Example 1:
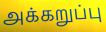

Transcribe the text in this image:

அக்கறுப்பு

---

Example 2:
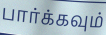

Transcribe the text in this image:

பார்க்கவும்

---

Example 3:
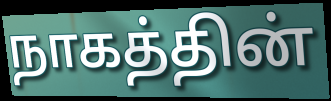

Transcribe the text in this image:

நாகத்தின்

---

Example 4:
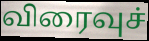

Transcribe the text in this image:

விரைவுச்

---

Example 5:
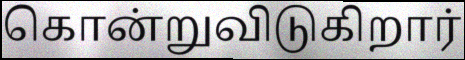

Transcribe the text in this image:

கொன்றுவிடுகிறார்